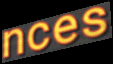
nces